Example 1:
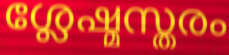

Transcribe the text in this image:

ശ്ലേഷ്മസ്തരം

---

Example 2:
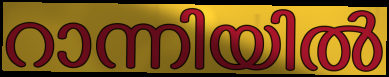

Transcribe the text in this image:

റാന്നിയിൽ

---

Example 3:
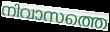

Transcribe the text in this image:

നിവാസത്തെ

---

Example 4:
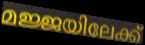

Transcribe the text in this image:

മജ്ജയിലേക്ക്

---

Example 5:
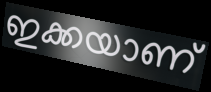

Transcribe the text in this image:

ഇക്കയാണ്